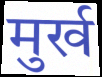
मुर्ख